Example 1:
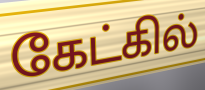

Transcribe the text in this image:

கேட்கில்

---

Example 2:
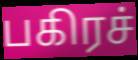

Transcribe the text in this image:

பகிரச்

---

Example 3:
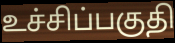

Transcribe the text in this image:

உச்சிப்பகுதி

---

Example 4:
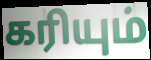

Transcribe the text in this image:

கரியும்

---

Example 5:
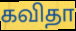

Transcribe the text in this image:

கவிதா